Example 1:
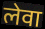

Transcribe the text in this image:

लेवा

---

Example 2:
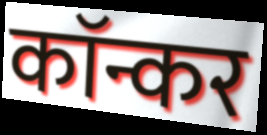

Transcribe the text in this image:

कॉन्कर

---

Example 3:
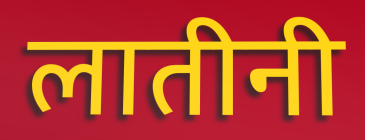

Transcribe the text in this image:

लातीनी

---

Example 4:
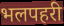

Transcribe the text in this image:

भलपहरी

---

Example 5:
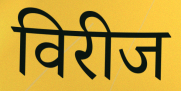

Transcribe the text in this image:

विरीज